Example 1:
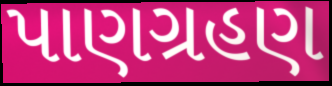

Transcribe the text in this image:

પાણગ્રહણ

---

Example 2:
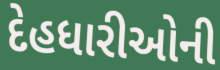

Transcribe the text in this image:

દેહધારીઓની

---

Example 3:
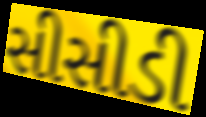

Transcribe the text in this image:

સીસીડી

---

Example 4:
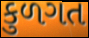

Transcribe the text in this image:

કુળગત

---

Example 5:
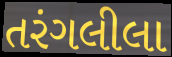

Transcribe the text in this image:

તરંગલીલા